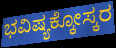
ಭವಿಷ್ಯಕ್ಕೋಸ್ಕರ